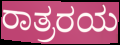
ರಾತ್ರರಯ